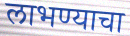
लाभण्याचा